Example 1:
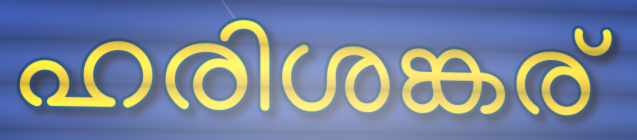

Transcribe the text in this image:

ഹരിശങ്കര്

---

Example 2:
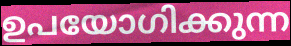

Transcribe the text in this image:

ഉപയോഗിക്കുന്ന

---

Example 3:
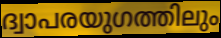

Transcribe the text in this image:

ദ്വാപരയുഗത്തിലും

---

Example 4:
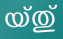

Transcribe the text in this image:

യ്തു്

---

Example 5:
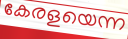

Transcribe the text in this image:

കേരളയെന്ന